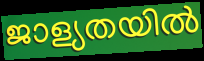
ജാള്യതയിൽ